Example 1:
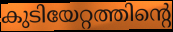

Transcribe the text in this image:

കുടിയേറ്റത്തിന്റെ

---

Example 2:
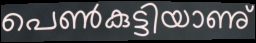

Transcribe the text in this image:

പെൺകുട്ടിയാണു്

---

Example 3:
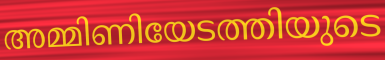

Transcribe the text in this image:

അമ്മിണിയേടത്തിയുടെ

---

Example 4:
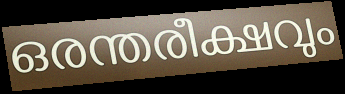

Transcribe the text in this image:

ഒരന്തരീക്ഷവും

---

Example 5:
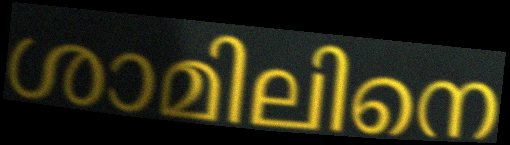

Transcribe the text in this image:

ശാമിലിനെ